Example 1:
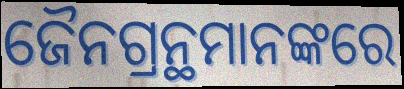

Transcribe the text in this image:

ଜୈନଗ୍ରନ୍ଥମାନଙ୍କରେ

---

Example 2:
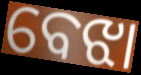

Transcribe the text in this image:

ବେଝା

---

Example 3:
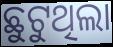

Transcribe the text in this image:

ଛୁଟୁଥିଲା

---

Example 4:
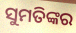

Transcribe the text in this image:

ସୁମତିଙ୍କର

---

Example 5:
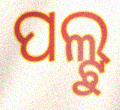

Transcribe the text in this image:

ପଲ୍ଟୁ